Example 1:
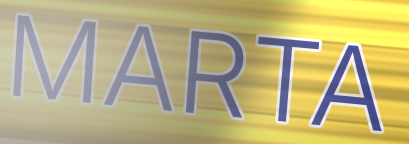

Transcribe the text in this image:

MARTA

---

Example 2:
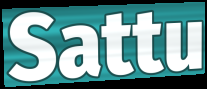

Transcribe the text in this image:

Sattu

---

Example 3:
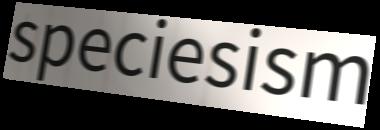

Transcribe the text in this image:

speciesism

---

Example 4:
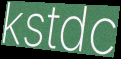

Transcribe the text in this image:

kstdc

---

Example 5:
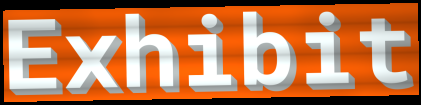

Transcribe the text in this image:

Exhibit